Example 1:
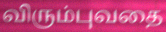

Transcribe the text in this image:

விரும்புவதை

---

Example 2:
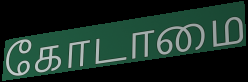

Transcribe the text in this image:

கோடாமை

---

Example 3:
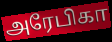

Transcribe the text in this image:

அரேபிகா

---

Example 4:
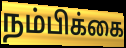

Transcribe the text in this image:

நம்பிக்கை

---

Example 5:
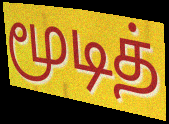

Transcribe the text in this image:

மூடித்